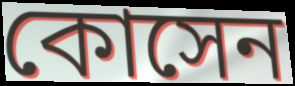
কোসেন